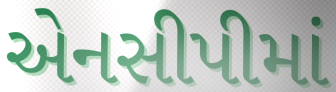
એનસીપીમાં